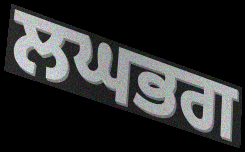
ਲਘਭਗ